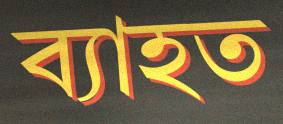
ব্যাহত